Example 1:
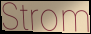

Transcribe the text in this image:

Strom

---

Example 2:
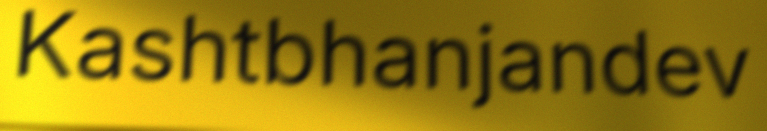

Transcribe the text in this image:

Kashtbhanjandev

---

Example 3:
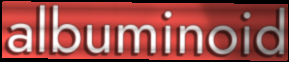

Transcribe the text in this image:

albuminoid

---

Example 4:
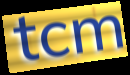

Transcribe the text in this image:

tcm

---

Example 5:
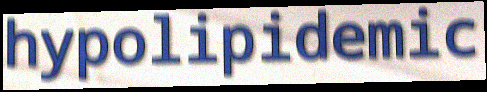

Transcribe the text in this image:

hypolipidemic